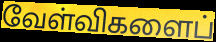
வேள்விகளைப்